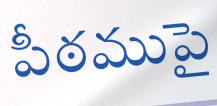
పీఠముపై